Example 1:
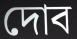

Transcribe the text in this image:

দোব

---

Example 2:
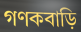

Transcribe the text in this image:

গণকবাড়ি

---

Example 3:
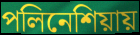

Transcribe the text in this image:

পলিনেশিয়ায়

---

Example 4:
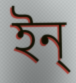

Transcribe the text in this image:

ইন্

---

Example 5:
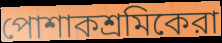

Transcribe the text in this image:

পোশাকশ্রমিকেরা